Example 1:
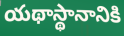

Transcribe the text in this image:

యథాస్థానానికి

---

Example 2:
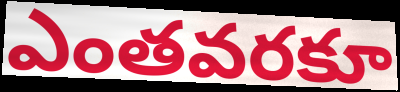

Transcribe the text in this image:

ఎంతవరకూ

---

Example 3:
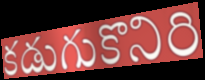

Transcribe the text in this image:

కడుగుకొనిరి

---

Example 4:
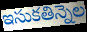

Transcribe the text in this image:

ఇసుకతిన్నెల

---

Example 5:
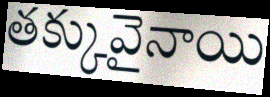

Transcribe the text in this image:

తక్కువైనాయి